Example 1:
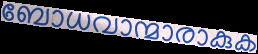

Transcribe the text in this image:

ബോധവാന്മാരാകുക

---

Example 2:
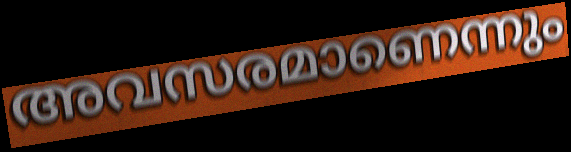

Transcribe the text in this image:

അവസരമാണെന്നും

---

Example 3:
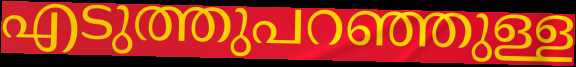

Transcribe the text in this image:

എടുത്തുപറഞ്ഞുള്ള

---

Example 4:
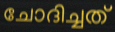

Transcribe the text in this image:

ചോദിച്ചത്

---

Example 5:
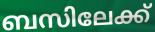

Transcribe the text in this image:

ബസിലേക്ക്